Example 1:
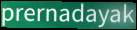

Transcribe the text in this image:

prernadayak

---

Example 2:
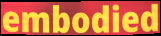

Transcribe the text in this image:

embodied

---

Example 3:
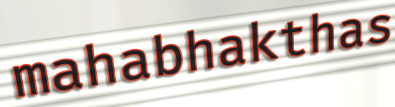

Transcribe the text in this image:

mahabhakthas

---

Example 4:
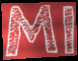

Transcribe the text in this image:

MI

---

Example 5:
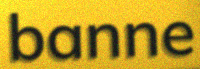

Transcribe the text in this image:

banne